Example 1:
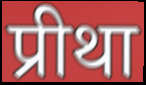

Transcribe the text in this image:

प्रीथा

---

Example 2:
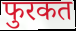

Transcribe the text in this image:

फुरकत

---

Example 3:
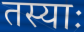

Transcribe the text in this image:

तस्याः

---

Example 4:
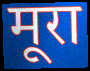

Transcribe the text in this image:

मूरा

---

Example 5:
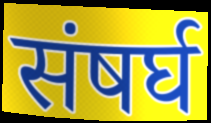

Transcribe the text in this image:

संषर्घ